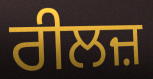
ਰੀਲਜ਼